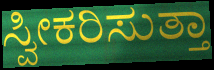
ಸ್ವೀಕರಿಸುತ್ತಾ